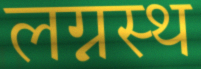
लग्नस्थ